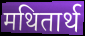
मथितार्थ